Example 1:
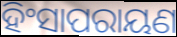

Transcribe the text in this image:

ହିଂସାପରାୟଣ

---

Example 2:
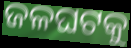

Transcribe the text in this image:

ଜଳଘଟକୁ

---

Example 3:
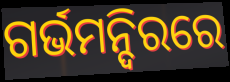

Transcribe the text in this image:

ଗର୍ଭମନ୍ଦିରରେ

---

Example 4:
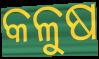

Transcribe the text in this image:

କଳୁଷ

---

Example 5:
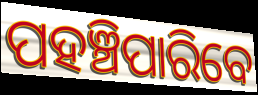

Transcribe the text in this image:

ପହଞ୍ଚିପାରିବେ